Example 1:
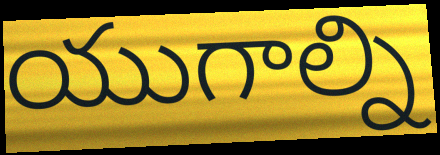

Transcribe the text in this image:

యుగాల్ని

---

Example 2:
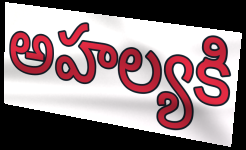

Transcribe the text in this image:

అహల్యకి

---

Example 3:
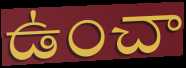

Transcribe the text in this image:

ఉంచా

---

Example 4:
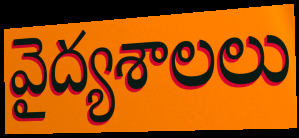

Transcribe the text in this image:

వైద్యశాలలు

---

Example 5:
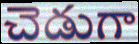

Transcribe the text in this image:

చెడుగా